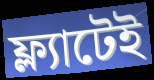
ফ্ল্যাটেই